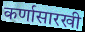
कर्णासारखी